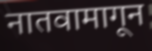
नातवामागून